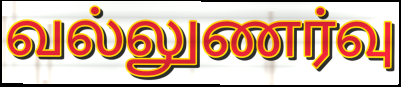
வல்லுணர்வு